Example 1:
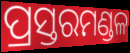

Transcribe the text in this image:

ପ୍ରସ୍ତରମଣ୍ଡଳ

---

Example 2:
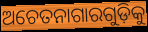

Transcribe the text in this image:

ଅଚେତନାଗାରଗୁଡ଼ିକୁ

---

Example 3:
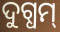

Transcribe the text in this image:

ଦୁଗ୍ଧମ୍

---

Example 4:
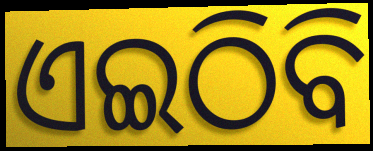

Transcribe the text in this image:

ଏଇଠିବି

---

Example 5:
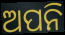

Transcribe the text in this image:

ଅପନି